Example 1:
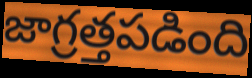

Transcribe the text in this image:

జాగ్రత్తపడింది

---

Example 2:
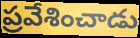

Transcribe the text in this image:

ప్రవేశించాడు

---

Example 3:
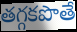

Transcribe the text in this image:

తగ్గకపొతే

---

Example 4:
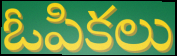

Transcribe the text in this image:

ఓపికలు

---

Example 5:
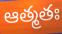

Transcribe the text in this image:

ఆత్మతః